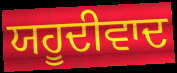
ਯਹੂਦੀਵਾਦ